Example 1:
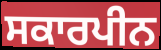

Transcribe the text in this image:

ਸਕਾਰਪੀਨ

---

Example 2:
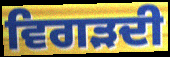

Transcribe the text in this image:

ਵਿਗੜਦੀ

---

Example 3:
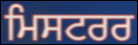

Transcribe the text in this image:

ਮਿਸਟਰਰ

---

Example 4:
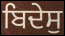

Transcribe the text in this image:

ਬਿਦੇਸੁ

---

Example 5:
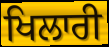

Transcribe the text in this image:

ਖਿਲਾਰੀ